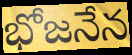
భోజనేన